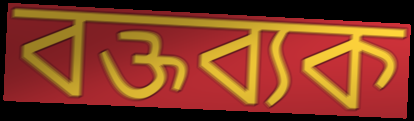
বক্তব্যক